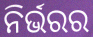
ନିର୍ଭରର